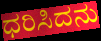
ಧರಿಸಿದನು